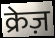
क्रेज़